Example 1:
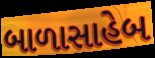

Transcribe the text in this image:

બાળાસાહેબ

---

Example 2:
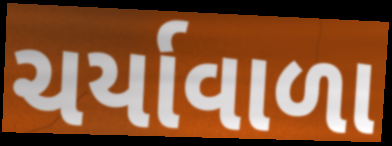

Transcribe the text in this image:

ચર્યાવાળા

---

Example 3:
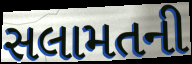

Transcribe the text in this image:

સલામતની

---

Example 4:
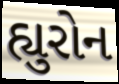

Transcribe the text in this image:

હ્યુરોન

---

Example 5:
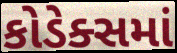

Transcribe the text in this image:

કોડેક્સમાં